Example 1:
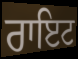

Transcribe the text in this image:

ਰਾਇਟ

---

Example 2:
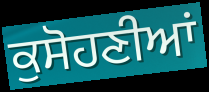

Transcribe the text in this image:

ਕੁਸੋਹਣੀਆਂ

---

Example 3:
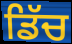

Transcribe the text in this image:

ਡਿੱਚ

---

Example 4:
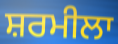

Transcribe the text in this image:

ਸ਼ਰਮੀਲਾ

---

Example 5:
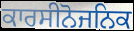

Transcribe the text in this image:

ਕਾਰਸੀਨੋਜਨਿਕ